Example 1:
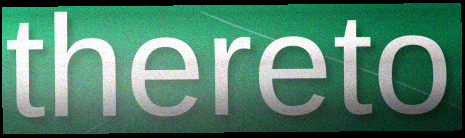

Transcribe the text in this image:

thereto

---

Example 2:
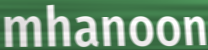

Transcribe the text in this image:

mhanoon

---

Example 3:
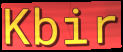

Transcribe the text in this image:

Kbir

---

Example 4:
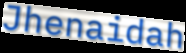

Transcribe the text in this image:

Jhenaidah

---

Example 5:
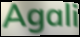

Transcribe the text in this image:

Agali